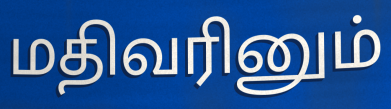
மதிவரினும்